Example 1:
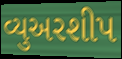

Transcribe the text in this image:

વ્યુઅરશીપ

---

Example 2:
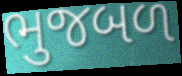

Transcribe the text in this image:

ભુજબળ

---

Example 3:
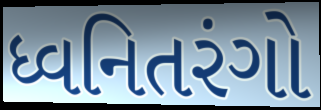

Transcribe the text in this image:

ધ્વનિતરંગો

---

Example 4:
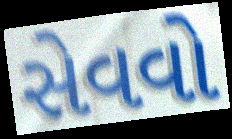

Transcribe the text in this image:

સેવવો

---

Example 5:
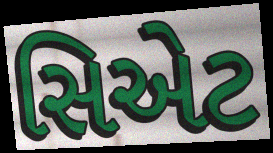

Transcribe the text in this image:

સિએટ